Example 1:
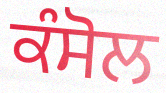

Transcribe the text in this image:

ਕੰਸੋਲ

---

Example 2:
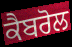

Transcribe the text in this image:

ਕੈਬਰੋਲ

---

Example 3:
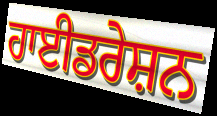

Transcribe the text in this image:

ਹਾਈਡਰੇਸ਼ਨ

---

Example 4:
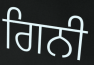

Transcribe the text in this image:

ਗਿਨੀ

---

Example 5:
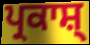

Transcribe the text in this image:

ਪ੍ਰਕਾਸ਼੍